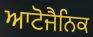
ਆਟੋਜੈਨਿਕ